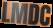
LMDC